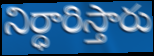
నిర్ధారిస్తారు